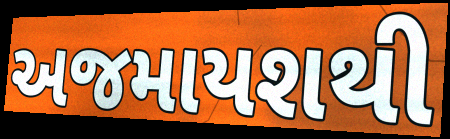
અજમાયશથી